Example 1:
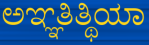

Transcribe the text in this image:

ಅಞ್ಞತಿತ್ಥಿಯಾ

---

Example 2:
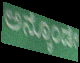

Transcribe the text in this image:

ಅನ್ಕೊಂಡೇ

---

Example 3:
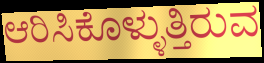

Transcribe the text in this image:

ಆರಿಸಿಕೊಳ್ಳುತ್ತಿರುವ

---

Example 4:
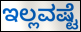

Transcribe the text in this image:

ಇಲ್ಲವಷ್ಟೆ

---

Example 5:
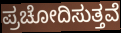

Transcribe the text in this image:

ಪ್ರಚೋದಿಸುತ್ತವೆ